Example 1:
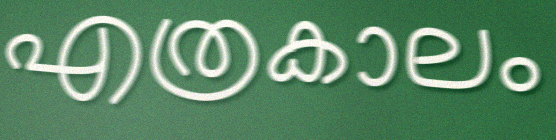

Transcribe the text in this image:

എത്രകാലം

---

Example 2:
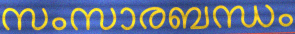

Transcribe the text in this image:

സംസാരബന്ധം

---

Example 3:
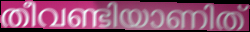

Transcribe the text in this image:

തീവണ്ടിയാണിത്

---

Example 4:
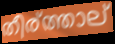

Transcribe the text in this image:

തീര്ത്താല്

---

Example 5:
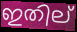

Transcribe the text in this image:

ഇതില്